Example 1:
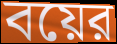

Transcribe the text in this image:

বয়ের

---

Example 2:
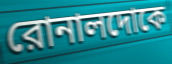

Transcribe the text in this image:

রোনালদোকে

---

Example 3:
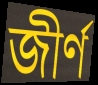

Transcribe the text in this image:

জীর্ণ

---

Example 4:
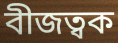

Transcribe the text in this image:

বীজত্বক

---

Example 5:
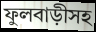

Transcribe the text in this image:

ফুলবাড়ীসহ